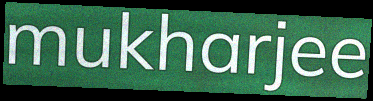
mukharjee